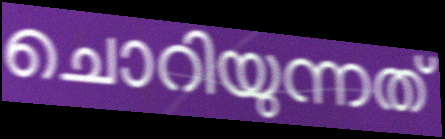
ചൊറിയുന്നത്